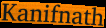
Kanifnath